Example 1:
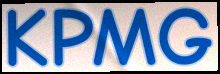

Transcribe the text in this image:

KPMG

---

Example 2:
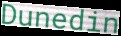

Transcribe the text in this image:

Dunedin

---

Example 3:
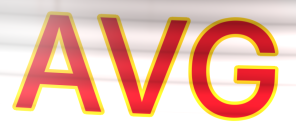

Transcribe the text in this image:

AVG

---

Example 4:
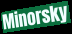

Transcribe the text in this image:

Minorsky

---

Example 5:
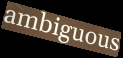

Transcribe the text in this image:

ambiguous